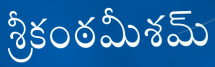
శ్రీకంఠమీశమ్